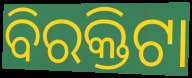
ବିରକ୍ତିଟା